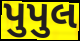
પુપુલ